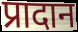
प्रादान